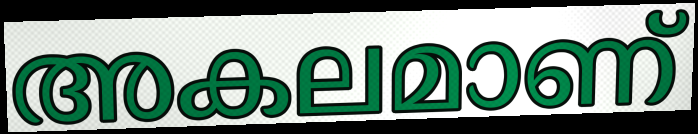
അകലമാണ്